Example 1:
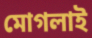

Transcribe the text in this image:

মোগলাই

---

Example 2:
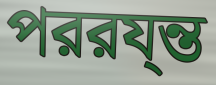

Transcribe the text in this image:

পররয্ন্ত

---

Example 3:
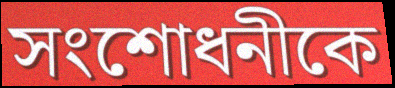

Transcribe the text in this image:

সংশোধনীকে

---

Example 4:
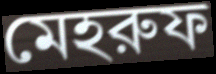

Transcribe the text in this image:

মেহরুফ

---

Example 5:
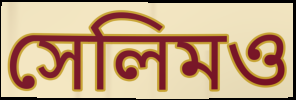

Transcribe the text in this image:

সেলিমও